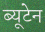
ब्यूटेन